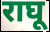
राघू